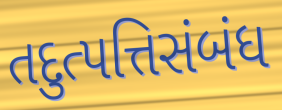
તદુત્પત્તિસંબંધ